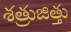
శత్రుజిత్తు